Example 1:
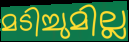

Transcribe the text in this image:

മടിച്ചുമില്ല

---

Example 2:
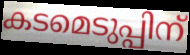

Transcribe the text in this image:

കടമെടുപ്പിന്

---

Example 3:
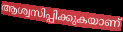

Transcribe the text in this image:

ആശ്വസിപ്പിക്കുകയാണ്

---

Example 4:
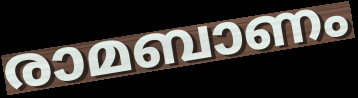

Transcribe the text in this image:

രാമബാണം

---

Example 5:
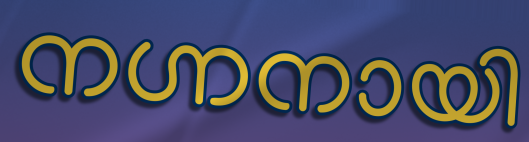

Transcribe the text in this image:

നഗ്നനായി